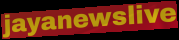
jayanewslive